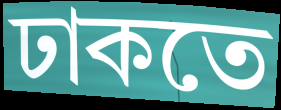
ঢাকতে